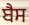
ਬੈਸ